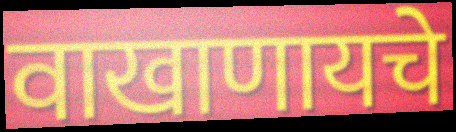
वाखाणायचे